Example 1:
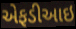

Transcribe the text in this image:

એફડીઆઇ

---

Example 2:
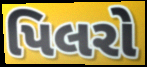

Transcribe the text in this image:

પિલરો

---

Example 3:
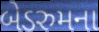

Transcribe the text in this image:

બેડરુમના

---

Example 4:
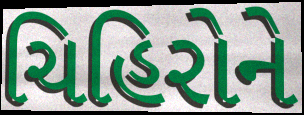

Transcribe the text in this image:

ચિહિરોને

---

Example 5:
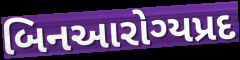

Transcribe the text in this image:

બિનઆરોગ્યપ્રદ